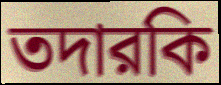
তদারকি